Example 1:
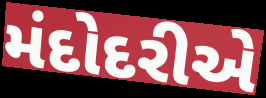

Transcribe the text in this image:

મંદોદરીએ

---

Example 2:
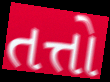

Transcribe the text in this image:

તત્તો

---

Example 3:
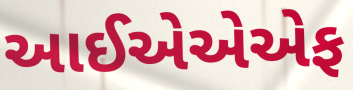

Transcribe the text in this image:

આઈએએએફ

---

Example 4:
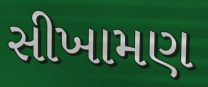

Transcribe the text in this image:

સીખામણ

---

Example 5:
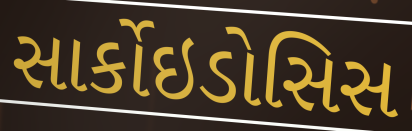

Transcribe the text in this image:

સાર્કોઇડોસિસ